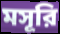
মসূরি